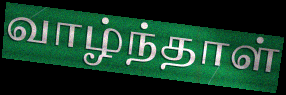
வாழ்ந்தாள்